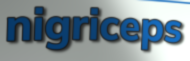
nigriceps